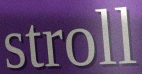
stroll